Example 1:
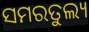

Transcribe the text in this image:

ସମରତୁଲ୍ୟ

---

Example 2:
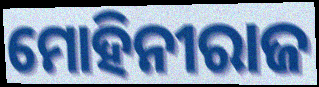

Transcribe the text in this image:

ମୋହିନୀରାଜ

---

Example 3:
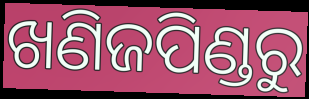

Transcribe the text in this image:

ଖଣିଜପିଣ୍ଡରୁ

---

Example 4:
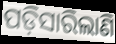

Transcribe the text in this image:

ପଡ଼ିସାରିଲାଣି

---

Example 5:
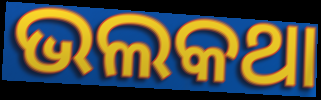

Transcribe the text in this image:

ଭଲକଥା